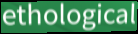
ethological